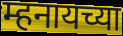
म्हनायच्या